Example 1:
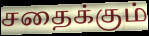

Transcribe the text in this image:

சதைக்கும்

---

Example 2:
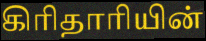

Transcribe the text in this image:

கிரிதாரியின்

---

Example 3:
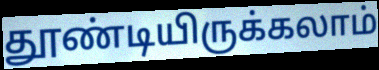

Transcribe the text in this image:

தூண்டியிருக்கலாம்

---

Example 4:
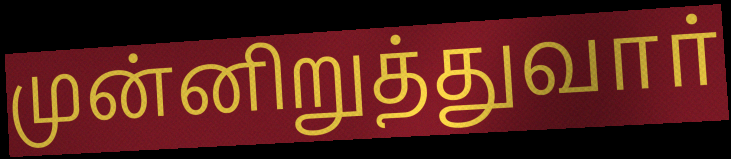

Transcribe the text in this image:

முன்னிறுத்துவார்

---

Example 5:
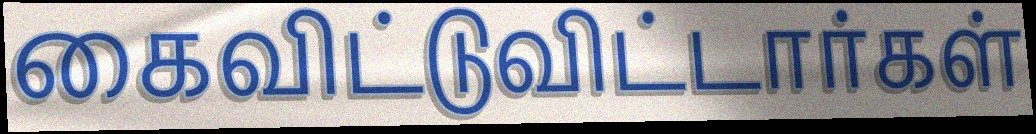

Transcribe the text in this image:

கைவிட்டுவிட்டார்கள்